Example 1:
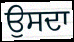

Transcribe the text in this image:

ਉਸਦਾ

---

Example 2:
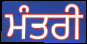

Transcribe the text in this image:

ਮੰਤਰੀ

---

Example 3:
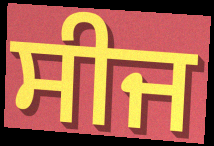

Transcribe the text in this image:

ਸੀਜ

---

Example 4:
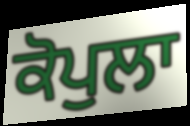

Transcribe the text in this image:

ਕੋਪੁਲਾ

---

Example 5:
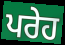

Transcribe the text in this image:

ਪਰੇਹ